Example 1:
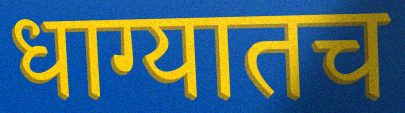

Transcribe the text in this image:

धाग्यातच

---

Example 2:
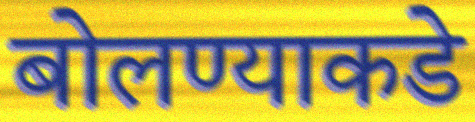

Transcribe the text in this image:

बोलण्याकडे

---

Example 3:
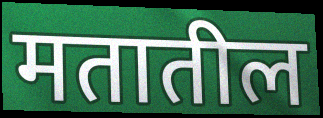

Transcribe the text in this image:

मतातील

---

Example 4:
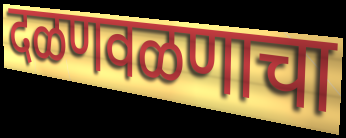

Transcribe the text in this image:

दळणवळणाचा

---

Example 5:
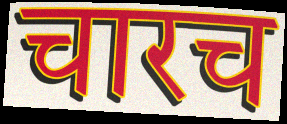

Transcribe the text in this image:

चारच